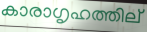
കാരാഗൃഹത്തില്